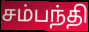
சம்பந்தி